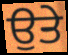
ਉਤੇ